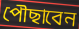
পৌছাবেন